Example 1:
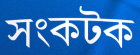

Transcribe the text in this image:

সংকটক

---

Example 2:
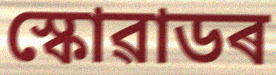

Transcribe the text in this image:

স্কোৱাডৰ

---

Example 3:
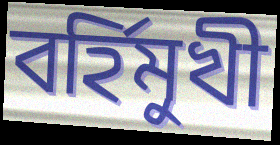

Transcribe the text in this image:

বৰ্হিমুখী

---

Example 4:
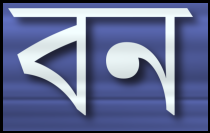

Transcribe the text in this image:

বন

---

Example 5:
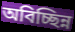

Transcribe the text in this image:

অবিচ্ছিন্ন